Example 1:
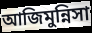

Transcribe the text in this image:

আজিমুন্নিসা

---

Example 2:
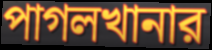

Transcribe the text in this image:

পাগলখানার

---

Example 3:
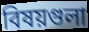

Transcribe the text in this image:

বিষয়গুলা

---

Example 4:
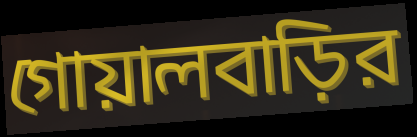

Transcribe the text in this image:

গোয়ালবাড়ির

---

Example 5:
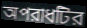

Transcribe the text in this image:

অপরাধটির